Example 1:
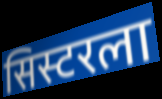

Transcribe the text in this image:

सिस्टरला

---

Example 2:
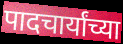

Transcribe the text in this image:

पादचार्यांच्या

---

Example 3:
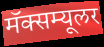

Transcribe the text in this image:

मॅक्सम्यूलर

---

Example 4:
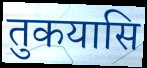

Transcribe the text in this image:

तुकयासि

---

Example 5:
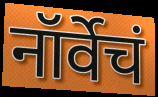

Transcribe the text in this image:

नॉर्वेचं